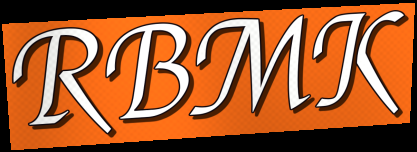
RBMK